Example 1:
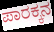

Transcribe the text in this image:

ಪಾರಕ್ಕನ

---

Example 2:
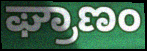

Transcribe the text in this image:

ಘ್ರಾಣಂ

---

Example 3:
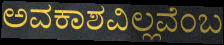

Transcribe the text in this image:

ಅವಕಾಶವಿಲ್ಲವೆಂಬ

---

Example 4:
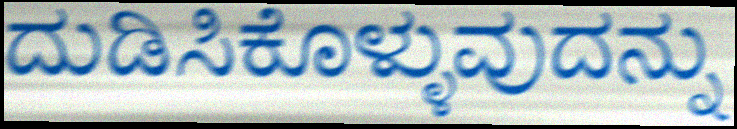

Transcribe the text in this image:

ದುಡಿಸಿಕೊಳ್ಳುವುದನ್ನು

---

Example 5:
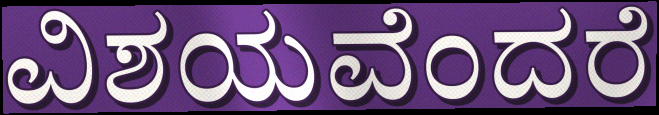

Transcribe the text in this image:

ವಿಶಯವೆಂದರೆ